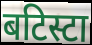
बटिस्टा